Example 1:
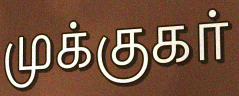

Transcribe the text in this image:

முக்குகர்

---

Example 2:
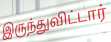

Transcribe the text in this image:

இருந்துவிட்டார்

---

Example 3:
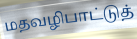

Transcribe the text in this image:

மதவழிபாட்டுத்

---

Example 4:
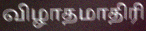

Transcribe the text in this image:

விழாதமாதிரி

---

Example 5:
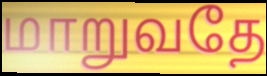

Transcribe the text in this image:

மாறுவதே